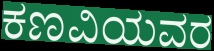
ಕಣವಿಯವರ